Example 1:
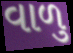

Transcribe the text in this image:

વાળુ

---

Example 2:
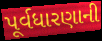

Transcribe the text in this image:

પૂર્વધારણાની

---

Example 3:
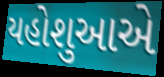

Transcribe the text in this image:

યહોશુઆએ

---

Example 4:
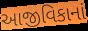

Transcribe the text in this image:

આજીવિકાનાં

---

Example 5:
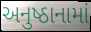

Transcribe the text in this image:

અનુષ્ઠાનામાં